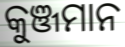
କୁଞ୍ଜମାନ